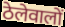
ठेलेवालों